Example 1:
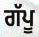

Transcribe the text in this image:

ਗੱਪੂ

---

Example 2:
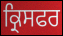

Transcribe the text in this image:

ਕ੍ਰਿਸਫਰ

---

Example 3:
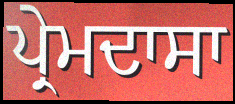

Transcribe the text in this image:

ਪ੍ਰੇਮਦਾਸਾ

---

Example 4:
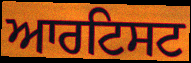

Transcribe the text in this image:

ਆਰਟਿਸਟ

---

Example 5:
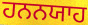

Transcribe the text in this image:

ਹਨਨਯਾਹ